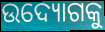
ଉଦ୍ୟୋଗକୁ